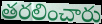
తరలించారు